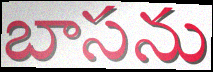
బాసను